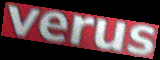
verus